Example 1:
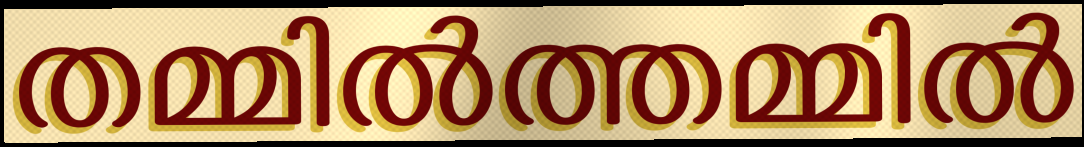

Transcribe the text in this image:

തമ്മിൽത്തമ്മിൽ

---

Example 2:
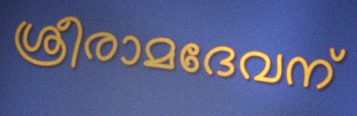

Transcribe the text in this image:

ശ്രീരാമദേവന്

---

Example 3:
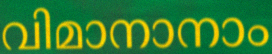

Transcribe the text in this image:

വിമാനാനാം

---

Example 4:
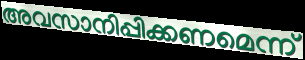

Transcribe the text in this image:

അവസാനിപ്പിക്കണമെന്ന്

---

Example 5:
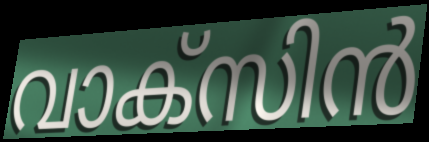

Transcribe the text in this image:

വാക്സിൻ